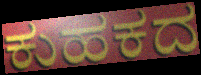
ಕುಹಕದ